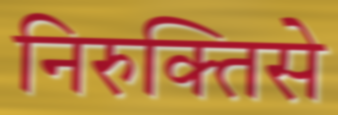
निरुक्तिसे